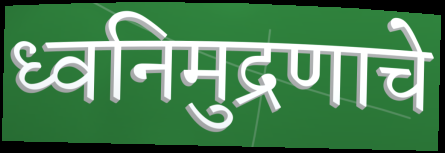
ध्वनिमुद्रणाचे